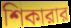
শিকারার